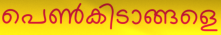
പെൺകിടാങ്ങളെ